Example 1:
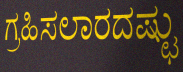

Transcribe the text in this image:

ಗ್ರಹಿಸಲಾರದಷ್ಟು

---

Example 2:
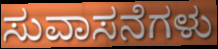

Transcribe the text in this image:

ಸುವಾಸನೆಗಳು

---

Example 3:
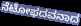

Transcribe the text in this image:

ನೆಟೋಫದವನಾದ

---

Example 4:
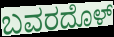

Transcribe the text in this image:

ಬವರದೊಳ್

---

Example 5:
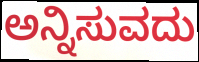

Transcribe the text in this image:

ಅನ್ನಿಸುವದು